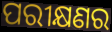
ପରୀକ୍ଷଣର